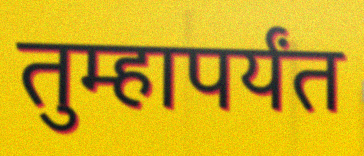
तुम्हापर्यंत